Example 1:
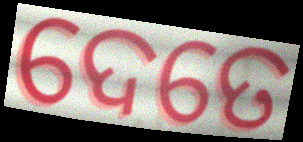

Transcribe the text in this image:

ଦେତେ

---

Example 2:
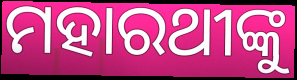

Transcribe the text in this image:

ମହାରଥୀଙ୍କୁ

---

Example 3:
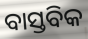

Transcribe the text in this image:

ବାସ୍ତବିକ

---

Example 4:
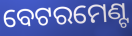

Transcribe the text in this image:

ବେଟରମେଣ୍ଟ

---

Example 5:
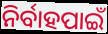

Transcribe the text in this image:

ନିର୍ବାହପାଇଁ